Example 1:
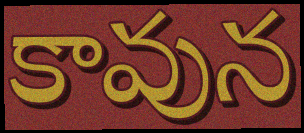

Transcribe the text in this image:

కావున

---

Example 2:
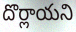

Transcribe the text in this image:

దొర్లాయని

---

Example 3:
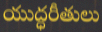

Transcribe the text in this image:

యుద్ధరీతులు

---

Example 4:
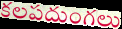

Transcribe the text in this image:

కలపదుంగలు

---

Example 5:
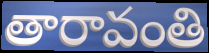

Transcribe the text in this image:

తారావంతి